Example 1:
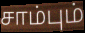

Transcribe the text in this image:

சாம்பும்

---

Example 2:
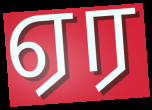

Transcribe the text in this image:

ஏர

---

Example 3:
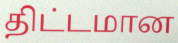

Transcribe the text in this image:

திட்டமான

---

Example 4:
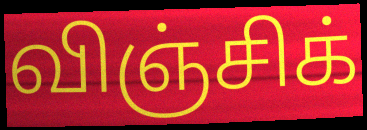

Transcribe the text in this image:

விஞ்சிக்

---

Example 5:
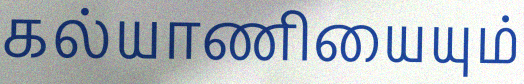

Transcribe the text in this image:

கல்யாணியையும்